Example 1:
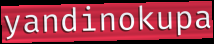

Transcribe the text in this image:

yandinokupa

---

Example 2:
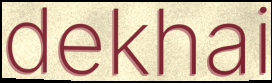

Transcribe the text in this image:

dekhai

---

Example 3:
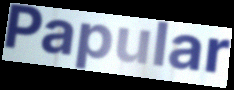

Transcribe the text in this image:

Papular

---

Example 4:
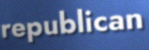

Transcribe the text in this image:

republican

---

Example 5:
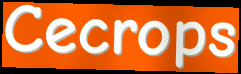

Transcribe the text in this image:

Cecrops